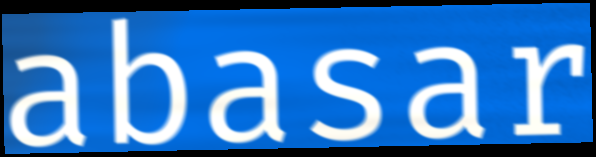
abasar